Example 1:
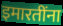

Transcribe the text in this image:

इमारतींना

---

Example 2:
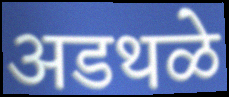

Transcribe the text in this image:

अडथळे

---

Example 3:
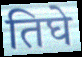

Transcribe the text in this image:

तिघे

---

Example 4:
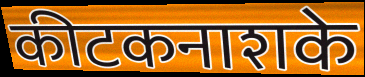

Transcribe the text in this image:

कीटकनाशके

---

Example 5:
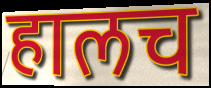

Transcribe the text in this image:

हालच